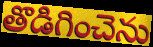
తొడిగించెను